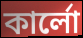
কার্লো